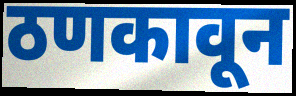
ठणकावून